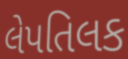
લેપતિલક